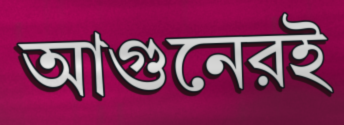
আগুনেরই